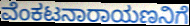
ವೆಂಕಟನಾರಾಯಣನಿಗೆ